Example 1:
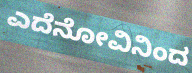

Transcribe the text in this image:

ಎದೆನೋವಿನಿಂದ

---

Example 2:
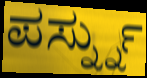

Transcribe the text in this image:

ಪರ್ಸ್ನ್ನು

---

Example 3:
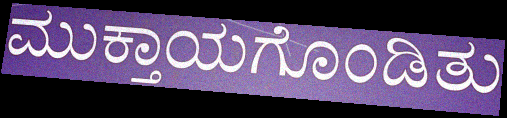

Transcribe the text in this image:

ಮುಕ್ತಾಯಗೊಂಡಿತು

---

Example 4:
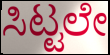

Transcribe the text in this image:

ಸಿಟ್ಟಲೇ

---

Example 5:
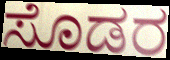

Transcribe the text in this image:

ಸೊಡರ